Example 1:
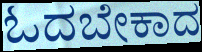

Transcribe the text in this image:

ಓದಬೇಕಾದ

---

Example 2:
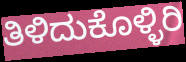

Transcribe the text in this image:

ತಿಳಿದುಕೊಳ್ಳಿರಿ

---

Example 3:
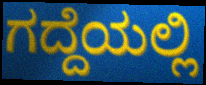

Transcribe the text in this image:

ಗದ್ದೆಯಲ್ಲಿ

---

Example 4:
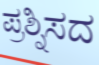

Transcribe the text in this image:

ಪ್ರಶ್ನಿಸದ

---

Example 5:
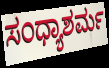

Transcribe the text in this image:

ಸಂಧ್ಯಾಶರ್ಮ